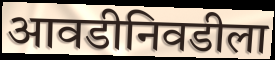
आवडीनिवडीला